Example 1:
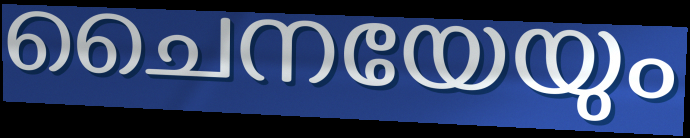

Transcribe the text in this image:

ചൈനയേയും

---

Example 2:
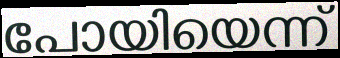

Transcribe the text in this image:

പോയിയെന്ന്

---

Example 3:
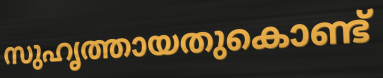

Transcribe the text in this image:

സുഹൃത്തായതുകൊണ്ട്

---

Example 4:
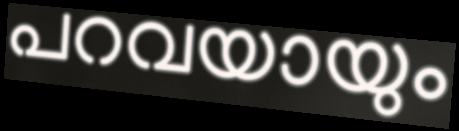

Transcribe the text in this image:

പറവയായും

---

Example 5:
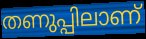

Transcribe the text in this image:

തണുപ്പിലാണ്